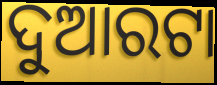
ଦୁଆରଟା